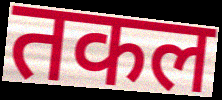
तकल